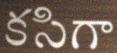
కసిగా